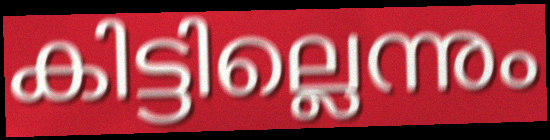
കിട്ടില്ലെന്നും